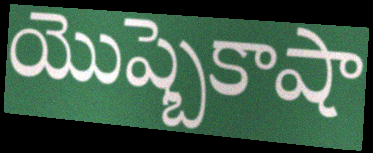
యొష్బెకాషా